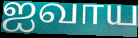
ஐவாய